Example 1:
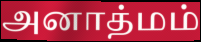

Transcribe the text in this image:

அனாத்மம்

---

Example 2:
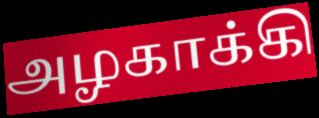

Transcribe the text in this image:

அழகாக்கி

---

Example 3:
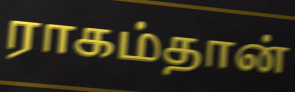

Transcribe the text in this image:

ராகம்தான்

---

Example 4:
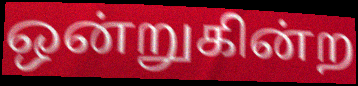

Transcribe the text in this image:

ஒன்றுகின்ற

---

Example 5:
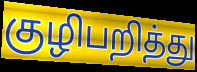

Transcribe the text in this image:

குழிபறித்து